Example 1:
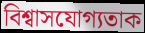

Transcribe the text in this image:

বিশ্বাসযোগ্যতাক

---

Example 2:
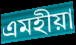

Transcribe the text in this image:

এমহীয়া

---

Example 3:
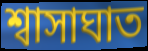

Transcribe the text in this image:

শ্বাসাঘাত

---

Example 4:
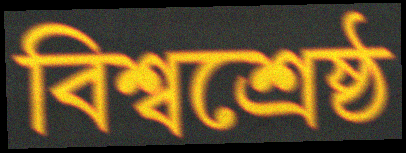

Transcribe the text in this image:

বিশ্বশ্ৰেষ্ঠ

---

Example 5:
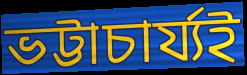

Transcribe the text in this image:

ভট্টাচাৰ্য্যই